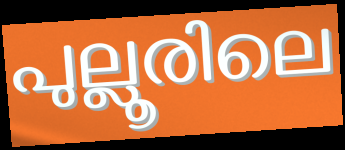
പുല്ലൂരിലെ